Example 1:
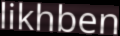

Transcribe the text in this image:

likhben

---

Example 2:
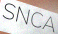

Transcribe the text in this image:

SNCA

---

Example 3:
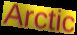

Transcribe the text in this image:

Arctic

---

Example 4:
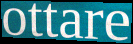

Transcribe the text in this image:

ottare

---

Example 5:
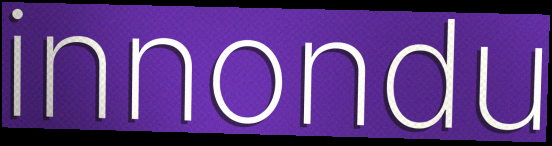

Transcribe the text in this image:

innondu